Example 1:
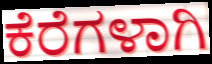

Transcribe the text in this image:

ಕೆರೆಗಳಾಗಿ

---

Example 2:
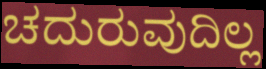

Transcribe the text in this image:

ಚದುರುವುದಿಲ್ಲ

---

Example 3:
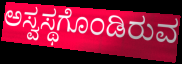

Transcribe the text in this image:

ಅಸ್ವಸ್ಥಗೊಂಡಿರುವ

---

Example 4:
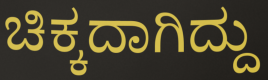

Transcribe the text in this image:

ಚಿಕ್ಕದಾಗಿದ್ದು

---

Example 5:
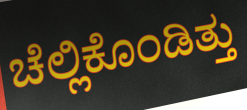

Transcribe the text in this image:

ಚೆಲ್ಲಿಕೊಂಡಿತ್ತು